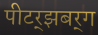
पीटर्झबर्ग